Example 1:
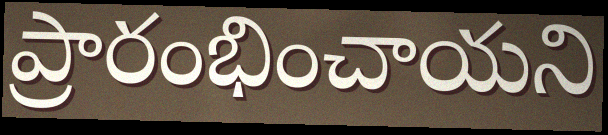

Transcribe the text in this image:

ప్రారంభించాయని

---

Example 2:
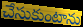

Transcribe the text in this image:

చేసుకుంటాను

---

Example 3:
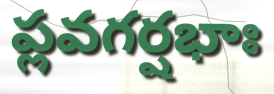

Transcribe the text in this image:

ప్లవగర్షభాః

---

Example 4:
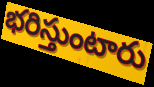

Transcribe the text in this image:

భరిస్తుంటారు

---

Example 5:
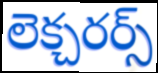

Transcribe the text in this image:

లెక్చరర్స్